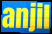
anjil